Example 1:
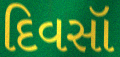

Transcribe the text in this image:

દિવસૉ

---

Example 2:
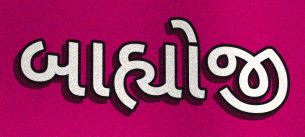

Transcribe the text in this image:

બાહ્યોજી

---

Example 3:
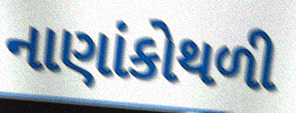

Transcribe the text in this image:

નાણાંકોથળી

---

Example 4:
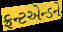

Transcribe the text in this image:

ફ્રન્ટએન્ડને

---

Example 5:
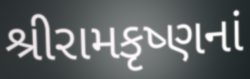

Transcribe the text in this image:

શ્રીરામકૃષ્ણનાં